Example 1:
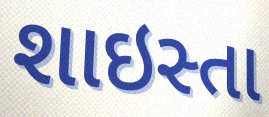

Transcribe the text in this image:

શાઇસ્તા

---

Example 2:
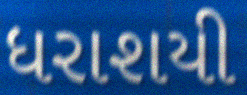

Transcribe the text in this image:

ધરાશયી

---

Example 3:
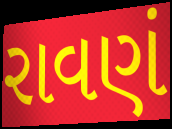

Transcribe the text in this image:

રાવણં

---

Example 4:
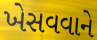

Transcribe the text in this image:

ખેસવવાને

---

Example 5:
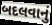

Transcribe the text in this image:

બદલવાનું